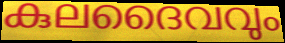
കുലദൈവവും